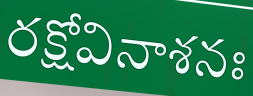
రక్షోవినాశనః